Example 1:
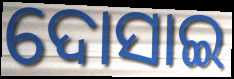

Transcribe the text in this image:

ଦୋସାଇ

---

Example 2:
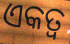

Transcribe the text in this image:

ଏକତ୍ୱ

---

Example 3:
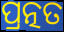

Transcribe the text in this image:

ପ୍ରତ୍ନତ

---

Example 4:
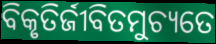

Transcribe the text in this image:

ବିକୃତିର୍ଜୀବିତମୁଚ୍ୟତେ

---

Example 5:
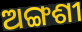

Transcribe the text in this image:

ଅଙ୍ଗଶୀ